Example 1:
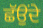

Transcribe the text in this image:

ਛੱਉਂਦੇ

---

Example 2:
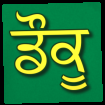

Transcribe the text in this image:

ਡੌਕੂ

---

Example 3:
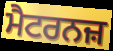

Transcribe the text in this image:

ਮੈਟਰਨਜ਼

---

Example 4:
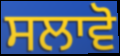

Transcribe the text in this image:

ਸਲਾਵੋ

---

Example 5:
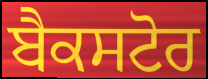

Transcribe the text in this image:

ਬੈਕਸਟੋਰ